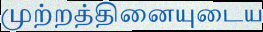
முற்றத்தினையுடைய